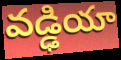
వడ్ఢియా